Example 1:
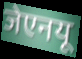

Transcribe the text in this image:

जेएनयू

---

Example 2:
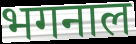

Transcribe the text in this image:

भगनाल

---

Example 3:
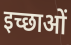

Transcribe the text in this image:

इच्छाओं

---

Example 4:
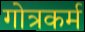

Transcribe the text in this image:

गोत्रकर्म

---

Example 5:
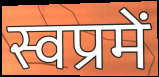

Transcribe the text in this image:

स्वप्रमें